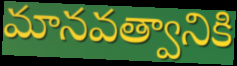
మానవత్వానికి